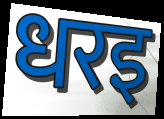
धरइ